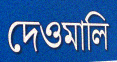
দেওমালি